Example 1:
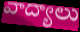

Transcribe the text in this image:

వాద్యాలు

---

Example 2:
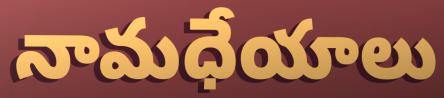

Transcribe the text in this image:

నామధేయాలు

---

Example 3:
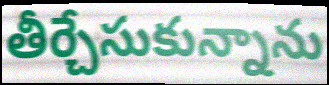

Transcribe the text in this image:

తీర్చేసుకున్నాను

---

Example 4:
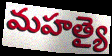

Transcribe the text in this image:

మహత్యై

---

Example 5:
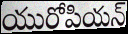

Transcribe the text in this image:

యురోపియన్